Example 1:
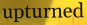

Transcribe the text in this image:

upturned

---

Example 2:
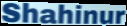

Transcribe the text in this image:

Shahinur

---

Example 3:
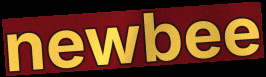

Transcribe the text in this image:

newbee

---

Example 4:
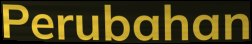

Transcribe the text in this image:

Perubahan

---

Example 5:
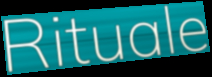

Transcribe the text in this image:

Rituale